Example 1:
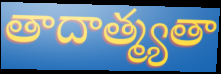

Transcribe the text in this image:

తాదాత్మ్యతా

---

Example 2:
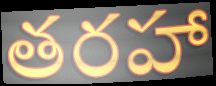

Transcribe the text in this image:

తరహా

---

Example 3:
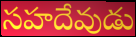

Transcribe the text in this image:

సహదేవుడు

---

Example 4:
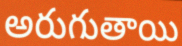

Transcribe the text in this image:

అరుగుతాయి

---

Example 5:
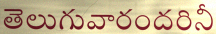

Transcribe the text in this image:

తెలుగువారందరినీ